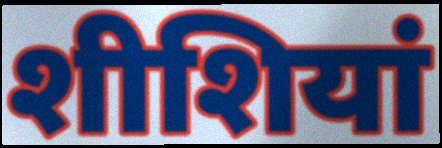
शीशियां